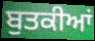
ਬੁਤਕੀਆਂ